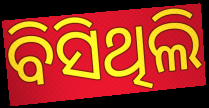
ବିସିଥିଲି